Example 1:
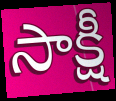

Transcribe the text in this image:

సాక్షీ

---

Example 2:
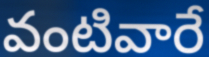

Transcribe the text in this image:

వంటివారే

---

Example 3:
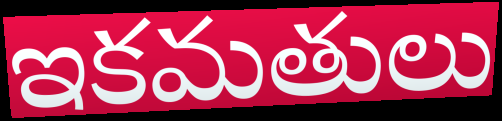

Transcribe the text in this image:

ఇకమతులు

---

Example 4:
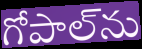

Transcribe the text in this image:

గోపాల్‌ను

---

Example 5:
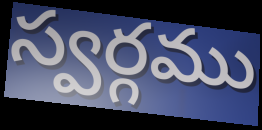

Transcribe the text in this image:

స్వర్గము